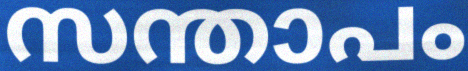
സന്താപം